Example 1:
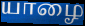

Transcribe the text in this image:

யாழை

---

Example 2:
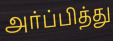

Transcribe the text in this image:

அர்ப்பித்து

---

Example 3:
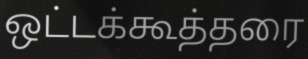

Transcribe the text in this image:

ஒட்டக்கூத்தரை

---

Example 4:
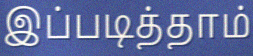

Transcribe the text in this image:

இப்படித்தாம்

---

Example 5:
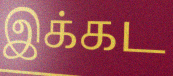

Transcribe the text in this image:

இக்கட